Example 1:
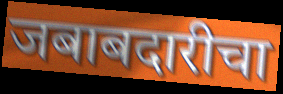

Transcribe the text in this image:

जबाबदारीचा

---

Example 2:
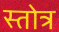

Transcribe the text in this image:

स्तोत्र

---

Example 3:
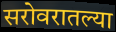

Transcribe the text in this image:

सरोवरातल्या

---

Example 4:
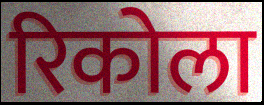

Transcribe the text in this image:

रिकोला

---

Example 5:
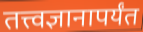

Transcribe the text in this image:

तत्त्वज्ञानापर्यंत